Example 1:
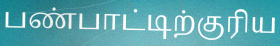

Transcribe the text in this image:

பண்பாட்டிற்குரிய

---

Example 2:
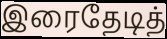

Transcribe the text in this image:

இரைதேடித்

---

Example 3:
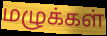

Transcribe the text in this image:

மழுக்கள்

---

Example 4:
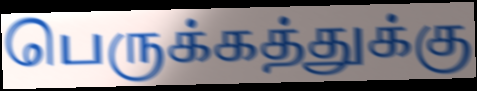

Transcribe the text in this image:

பெருக்கத்துக்கு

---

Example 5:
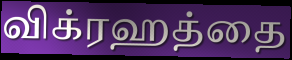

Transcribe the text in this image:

விக்ரஹத்தை